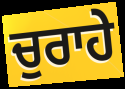
ਚੁਰਾਹੇ